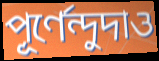
পূর্ণেন্দুদাও